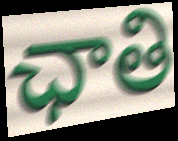
ఛాతి